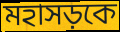
মহাসড়কে